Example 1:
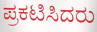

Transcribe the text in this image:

ಪ್ರಕಟಿಸಿದರು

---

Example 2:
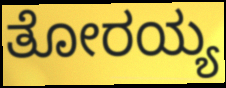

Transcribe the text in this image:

ತೋರಯ್ಯ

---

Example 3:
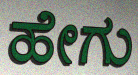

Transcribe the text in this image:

ಹೇಗು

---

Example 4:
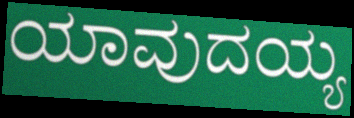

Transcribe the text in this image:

ಯಾವುದಯ್ಯ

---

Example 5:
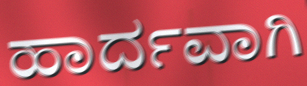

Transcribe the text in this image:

ಹಾರ್ದವಾಗಿ